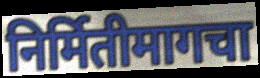
निर्मितीमागचा